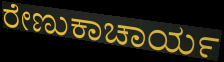
ರೇಣುಕಾಚಾರ್ಯ